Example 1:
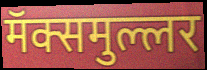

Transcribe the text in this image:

मॅक्समुल्लर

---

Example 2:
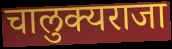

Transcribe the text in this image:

चालुक्यराजा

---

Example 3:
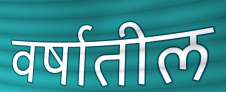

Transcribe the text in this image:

वर्षातील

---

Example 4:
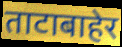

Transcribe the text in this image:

ताटाबाहेर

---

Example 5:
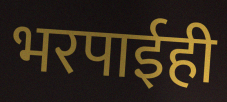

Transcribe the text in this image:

भरपाईही